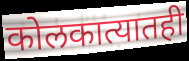
कोलकात्यातही